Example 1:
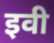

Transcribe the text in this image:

इवी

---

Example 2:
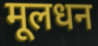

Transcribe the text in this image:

मूलधन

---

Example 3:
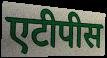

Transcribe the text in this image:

एटीपीस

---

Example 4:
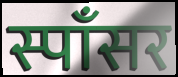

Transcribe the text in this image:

स्पॉंसर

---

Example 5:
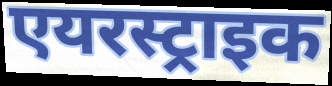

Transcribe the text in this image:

एयरस्ट्राइक